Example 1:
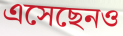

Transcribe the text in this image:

এসেছেনও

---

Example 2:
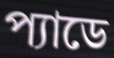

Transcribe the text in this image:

প্যাডে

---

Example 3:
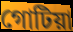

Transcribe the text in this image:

গোটিয়া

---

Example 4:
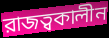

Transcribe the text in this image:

রাজত্বকালীন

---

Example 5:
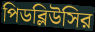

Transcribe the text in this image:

পিডব্লিউসির